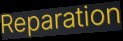
Reparation